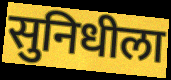
सुनिधीला